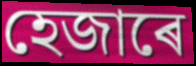
হেজাৰে